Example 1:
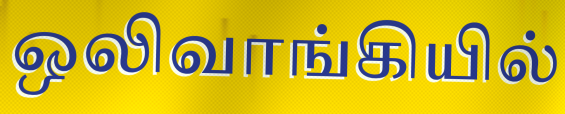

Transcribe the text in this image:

ஒலிவாங்கியில்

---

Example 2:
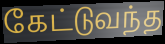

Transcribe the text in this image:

கேட்டுவந்த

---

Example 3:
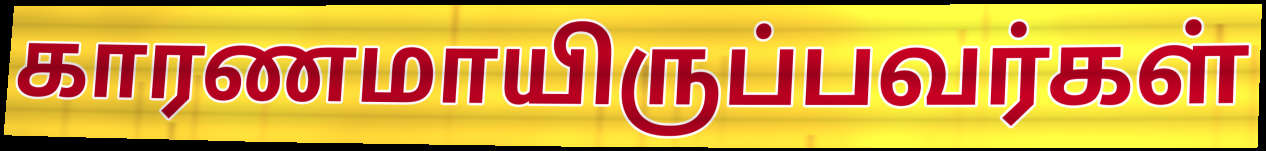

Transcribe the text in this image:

காரணமாயிருப்பவர்கள்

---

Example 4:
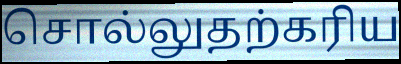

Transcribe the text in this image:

சொல்லுதற்கரிய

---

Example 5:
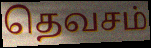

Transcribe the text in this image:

தெவசம்